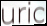
uric